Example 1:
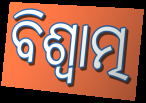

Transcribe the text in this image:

ବିଶ୍ୱାତ୍ମ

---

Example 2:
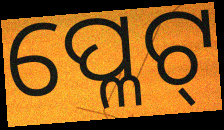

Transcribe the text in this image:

ପ୍ଳେଟ୍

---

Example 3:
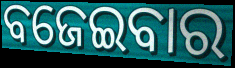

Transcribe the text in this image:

ବଜେଇବାର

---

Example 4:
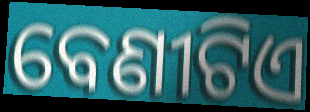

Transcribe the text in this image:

ବେଣୀଟିଏ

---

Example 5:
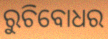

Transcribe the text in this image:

ରୁଚିବୋଧର